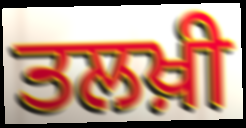
ਤਲਖ਼ੀ